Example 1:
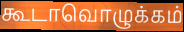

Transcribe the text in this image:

கூடாவொழுக்கம்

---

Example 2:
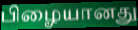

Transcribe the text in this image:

பிழையானது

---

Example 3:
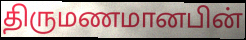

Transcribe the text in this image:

திருமணமானபின்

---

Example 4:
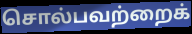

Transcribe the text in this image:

சொல்பவற்றைக்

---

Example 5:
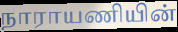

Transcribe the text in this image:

நாராயணியின்